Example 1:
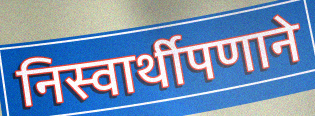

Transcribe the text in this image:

निस्वार्थीपणाने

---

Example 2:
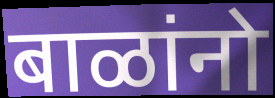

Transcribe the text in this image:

बाळांनो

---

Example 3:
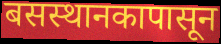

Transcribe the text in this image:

बसस्थानकापासून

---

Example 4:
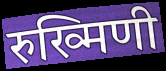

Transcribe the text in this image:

रुख्मिणी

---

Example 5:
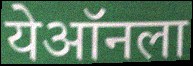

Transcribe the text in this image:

येऑनला